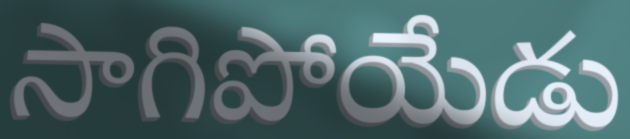
సాగిపోయేడు